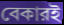
বেকারই